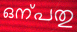
ഒന്പതു